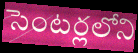
సెంటర్లలోని